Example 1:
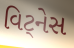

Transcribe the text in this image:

વિટ્નેસ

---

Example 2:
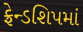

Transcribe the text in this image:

ફ્રેન્ડશિપમાં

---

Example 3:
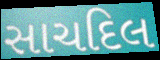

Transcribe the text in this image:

સાચદિલ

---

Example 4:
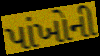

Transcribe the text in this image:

પાંખોની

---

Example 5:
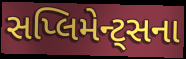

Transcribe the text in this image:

સપ્લિમેન્ટ્સના